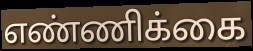
எண்ணிக்கை